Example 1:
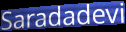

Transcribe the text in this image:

Saradadevi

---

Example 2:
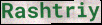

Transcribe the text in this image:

Rashtriy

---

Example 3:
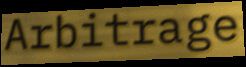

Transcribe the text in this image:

Arbitrage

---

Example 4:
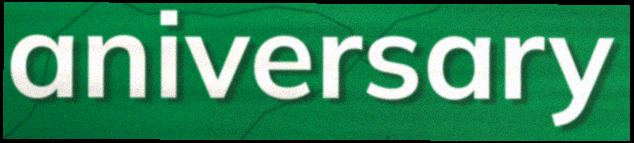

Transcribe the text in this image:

aniversary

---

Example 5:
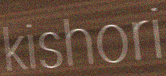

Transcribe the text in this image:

kishori